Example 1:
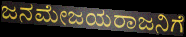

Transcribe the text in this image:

ಜನಮೇಜಯರಾಜನಿಗೆ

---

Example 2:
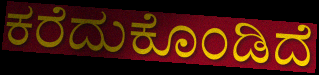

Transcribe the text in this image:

ಕರೆದುಕೊಂಡಿದೆ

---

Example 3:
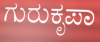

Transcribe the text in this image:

ಗುರುಕೃಪಾ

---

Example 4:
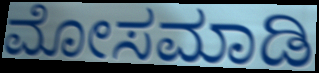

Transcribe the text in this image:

ಮೋಸಮಾಡಿ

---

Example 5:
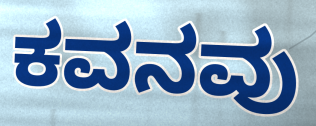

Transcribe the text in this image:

ಕವನವು